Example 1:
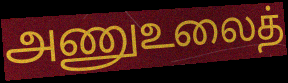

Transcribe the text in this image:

அணுஉலைத்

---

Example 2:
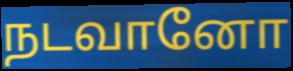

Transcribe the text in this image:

நடவானோ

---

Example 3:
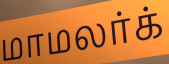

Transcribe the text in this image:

மாமலர்க்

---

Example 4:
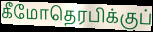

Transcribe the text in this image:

கீமோதெரபிக்குப்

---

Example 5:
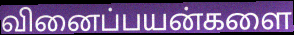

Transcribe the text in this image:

வினைப்பயன்களை